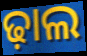
ଢ଼ାଲ